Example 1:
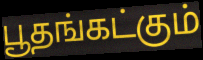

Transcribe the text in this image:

பூதங்கட்கும்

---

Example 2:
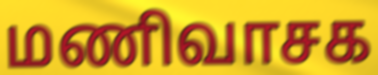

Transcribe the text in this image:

மணிவாசக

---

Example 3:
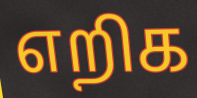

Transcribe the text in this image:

எறிக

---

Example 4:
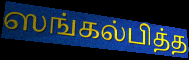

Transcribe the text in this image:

ஸங்கல்பித்த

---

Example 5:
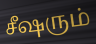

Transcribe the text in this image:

சீஷரும்